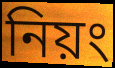
নিয়ং